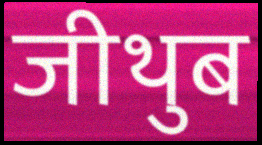
जीथुब